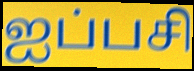
ஐப்பசி